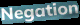
Negation